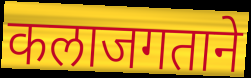
कलाजगताने